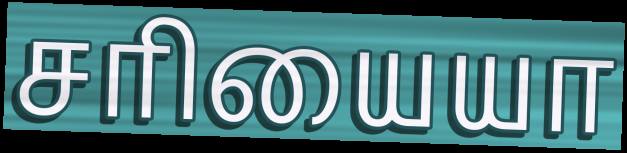
சரியையா